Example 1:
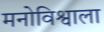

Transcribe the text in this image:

मनोविश्वाला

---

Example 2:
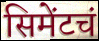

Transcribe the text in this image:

सिमेंटचं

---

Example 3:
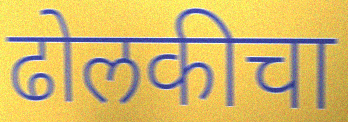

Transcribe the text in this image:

ढोलकीचा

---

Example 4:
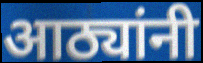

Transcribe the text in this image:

आठ्यांनी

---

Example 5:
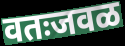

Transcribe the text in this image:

वतःजवळ